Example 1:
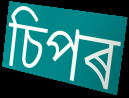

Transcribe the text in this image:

চিপৰ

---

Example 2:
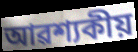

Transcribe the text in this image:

আৱশ্যকীয়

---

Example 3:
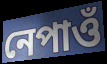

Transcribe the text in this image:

নেপাওঁ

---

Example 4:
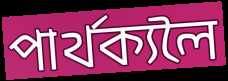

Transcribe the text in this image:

পাৰ্থক্যলৈ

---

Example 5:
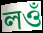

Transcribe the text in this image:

লওঁ